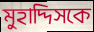
মুহাদ্দিসকে